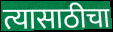
त्यासाठीचा